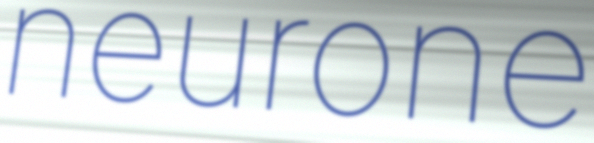
neurone